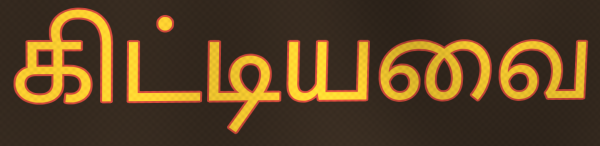
கிட்டியவை